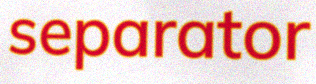
separator